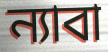
ন্যাবা